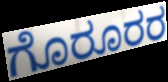
ಗೊರೂರರ